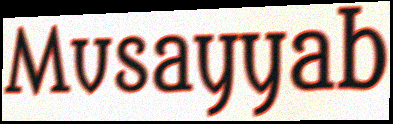
Musayyab